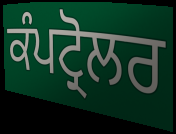
ਕੰਪਟ੍ਰੋਲਰ